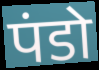
पंडो